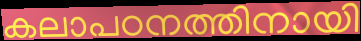
കലാപഠനത്തിനായി